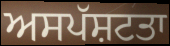
ਅਸਪੱਸ਼ਟਤਾ